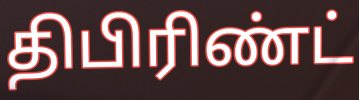
திபிரிண்ட்